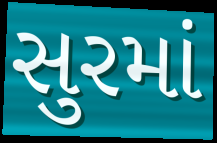
સુરમાં